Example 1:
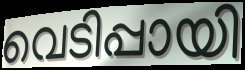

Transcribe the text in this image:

വെടിപ്പായി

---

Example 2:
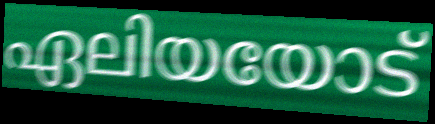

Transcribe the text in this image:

ഏലിയയോട്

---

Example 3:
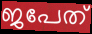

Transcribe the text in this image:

ജപേത്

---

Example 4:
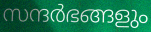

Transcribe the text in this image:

സന്ദർഭങ്ങളും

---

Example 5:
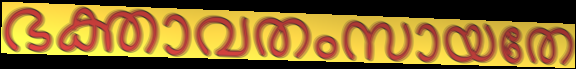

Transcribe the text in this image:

ഭക്താവതംസായതേ